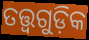
ତତ୍ତ୍ବଗୁଡ଼ିକ